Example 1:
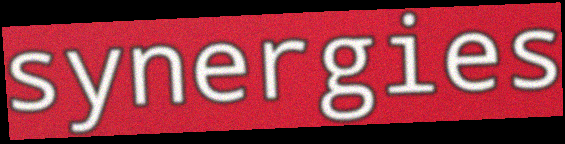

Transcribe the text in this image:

synergies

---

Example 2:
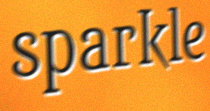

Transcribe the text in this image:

sparkle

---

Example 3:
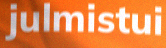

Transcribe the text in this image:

julmistui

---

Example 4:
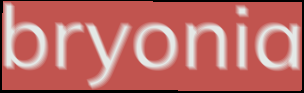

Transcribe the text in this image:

bryonia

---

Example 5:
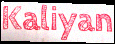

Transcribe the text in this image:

Kaliyan